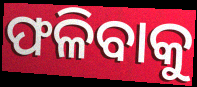
ଫଳିବାକୁ